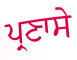
ਪ੍ਰਣਾਸੇ